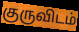
குருவிடம்